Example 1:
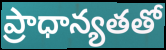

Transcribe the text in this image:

ప్రాధాన్యతతో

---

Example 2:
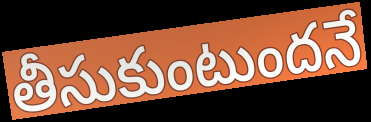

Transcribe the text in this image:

తీసుకుంటుందనే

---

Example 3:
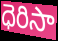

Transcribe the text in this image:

ధెరిసా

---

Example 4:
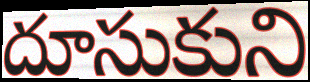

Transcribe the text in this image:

దూసుకుని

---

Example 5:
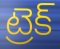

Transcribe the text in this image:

ట్రెక్